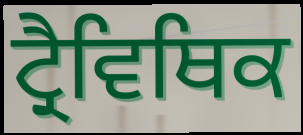
ਟ੍ਰੈਵਿਥਿਕ